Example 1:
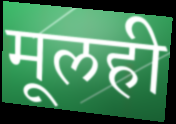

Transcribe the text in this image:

मूलही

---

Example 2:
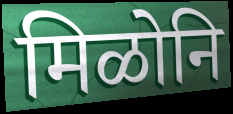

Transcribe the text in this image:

मिळोनि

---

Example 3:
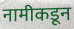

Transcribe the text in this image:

नामीकडून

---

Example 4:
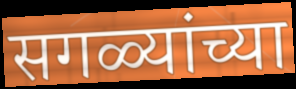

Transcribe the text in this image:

सगळ्यांच्या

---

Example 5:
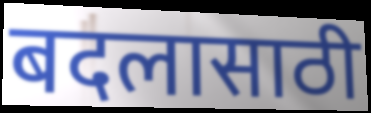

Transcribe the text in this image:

बदलासाठी